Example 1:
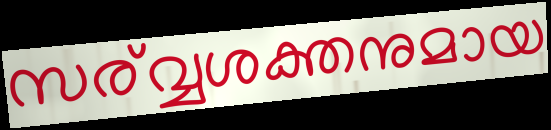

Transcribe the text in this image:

സര്വ്വശക്തനുമായ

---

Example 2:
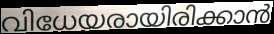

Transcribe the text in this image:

വിധേയരായിരിക്കാൻ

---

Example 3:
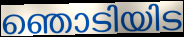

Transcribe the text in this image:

ഞൊടിയിട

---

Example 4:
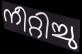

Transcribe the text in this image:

നീറ്റിച്ചു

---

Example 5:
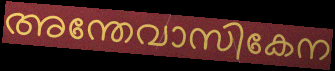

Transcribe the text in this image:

അന്തേവാസികേന